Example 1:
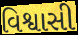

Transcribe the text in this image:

વિશ્વાસી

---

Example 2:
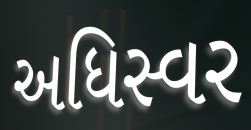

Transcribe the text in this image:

અધિસ્વર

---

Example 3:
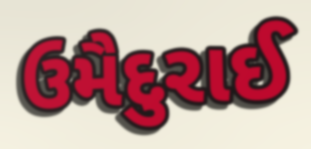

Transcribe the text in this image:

ઉમૈદુરાઈ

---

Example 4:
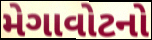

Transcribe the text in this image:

મેગાવોટનો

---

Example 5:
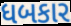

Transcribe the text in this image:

ધબકાર